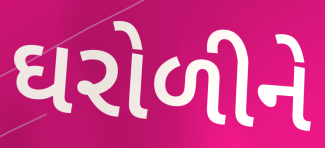
ઘરોળીને